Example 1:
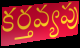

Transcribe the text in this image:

కర్తవ్యపు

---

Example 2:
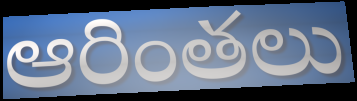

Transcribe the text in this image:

ఆరింతలు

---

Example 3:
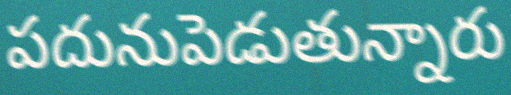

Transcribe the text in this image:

పదునుపెడుతున్నారు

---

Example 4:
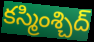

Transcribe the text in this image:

కస్మింశ్చిద్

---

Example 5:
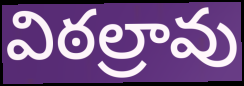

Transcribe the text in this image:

విఠల్రావు